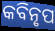
କବିନୃପ